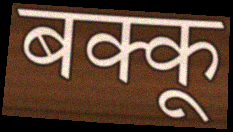
बक्कू